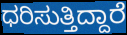
ಧರಿಸುತ್ತಿದ್ದಾರೆ